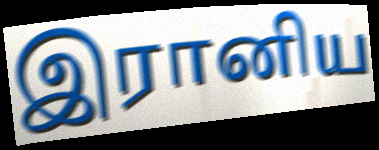
இரானிய